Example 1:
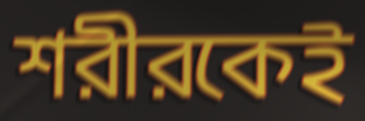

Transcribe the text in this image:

শরীরকেই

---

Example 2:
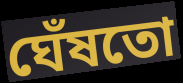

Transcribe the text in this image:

ঘেঁষতো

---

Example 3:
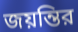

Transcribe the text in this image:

জয়ন্তির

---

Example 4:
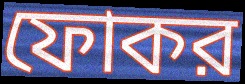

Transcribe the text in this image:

ফোকর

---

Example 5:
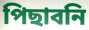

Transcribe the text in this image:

পিছাবনি